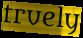
truely